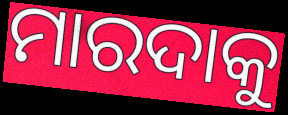
ମାରଦାକୁ